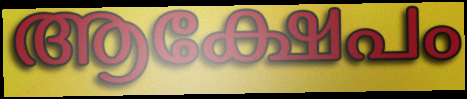
ആക്ഷേപം